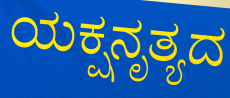
ಯಕ್ಷನೃತ್ಯದ